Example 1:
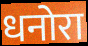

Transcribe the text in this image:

धनोरा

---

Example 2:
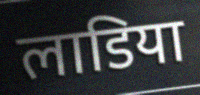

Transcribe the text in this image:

लाडिया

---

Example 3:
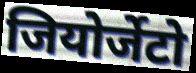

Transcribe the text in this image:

जियोर्जेटो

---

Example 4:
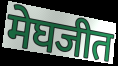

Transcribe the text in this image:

मेघजीत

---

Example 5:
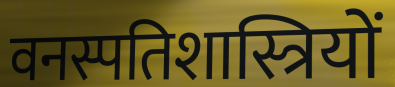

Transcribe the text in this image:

वनस्पतिशास्त्रियों